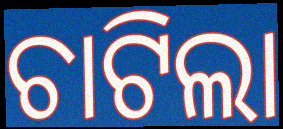
ଚାଟିଲା